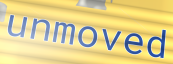
unmoved